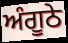
ਅੰਗੂਠੇ